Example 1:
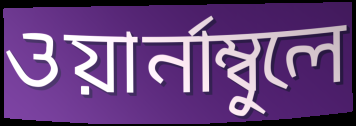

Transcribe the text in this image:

ওয়ার্নাম্বুলে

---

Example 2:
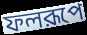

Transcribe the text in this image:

ফলরূপে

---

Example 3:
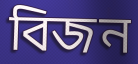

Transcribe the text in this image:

বিজন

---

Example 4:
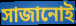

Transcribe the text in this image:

সাজানোই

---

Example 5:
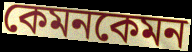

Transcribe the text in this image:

কেমনকেমন